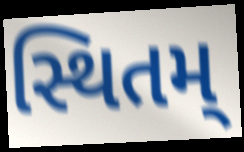
સ્થિતમ્